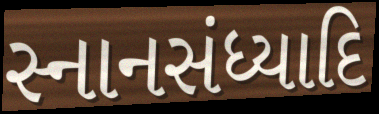
સ્નાનસંધ્યાદિ